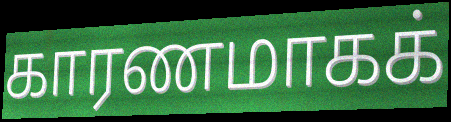
காரணமாகக்